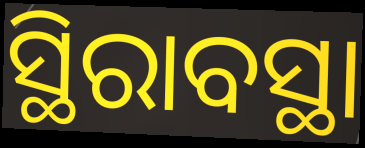
ସ୍ଥିରାବସ୍ଥା